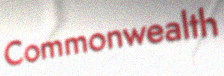
Commonwealth